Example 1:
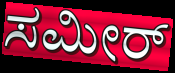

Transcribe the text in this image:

ಸಮೀರ್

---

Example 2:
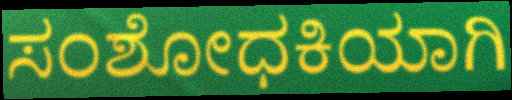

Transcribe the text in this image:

ಸಂಶೋಧಕಿಯಾಗಿ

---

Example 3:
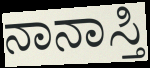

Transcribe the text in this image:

ನಾನಾಸ್ತಿ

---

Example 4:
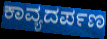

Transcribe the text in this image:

ಕಾವ್ಯದರ್ಪಣ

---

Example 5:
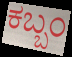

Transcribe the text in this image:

ಕಬ್ಬಂ